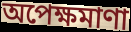
অপেক্ষমাণা